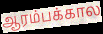
ஆரம்பக்கால